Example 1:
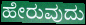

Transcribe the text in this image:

ಹೇರುವುದು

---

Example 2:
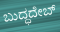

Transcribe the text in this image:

ಬುದ್ಧದೇಬ್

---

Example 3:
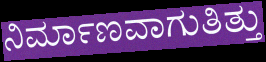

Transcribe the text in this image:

ನಿರ್ಮಾಣವಾಗುತಿತ್ತು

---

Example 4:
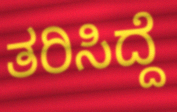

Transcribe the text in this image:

ತರಿಸಿದ್ದೆ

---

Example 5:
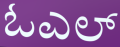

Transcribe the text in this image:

ಓಎಲ್